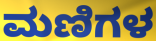
ಮಣಿಗಳ